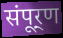
संपूर्ण